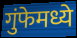
गुंफेमध्ये